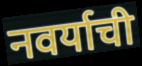
नवर्याची